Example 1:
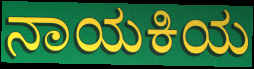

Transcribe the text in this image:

ನಾಯಕಿಯ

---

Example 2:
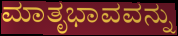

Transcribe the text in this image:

ಮಾತೃಭಾವವನ್ನು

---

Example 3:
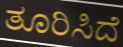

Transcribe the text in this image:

ತೂರಿಸಿದೆ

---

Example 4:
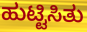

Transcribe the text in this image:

ಹುಟ್ಟಿಸಿತು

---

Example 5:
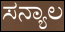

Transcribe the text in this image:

ಸನ್ಯಾಲ